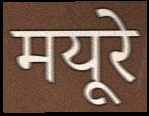
मयूरे